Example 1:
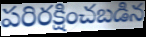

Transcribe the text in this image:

పరిరక్షించబడిన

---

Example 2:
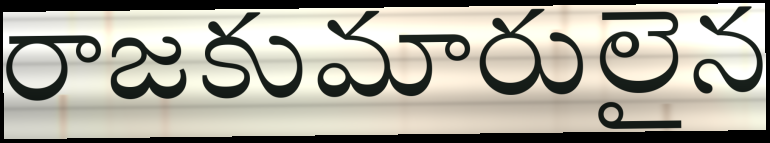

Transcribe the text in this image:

రాజకుమారులైన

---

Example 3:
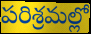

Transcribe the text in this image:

పరిశ్రమల్లో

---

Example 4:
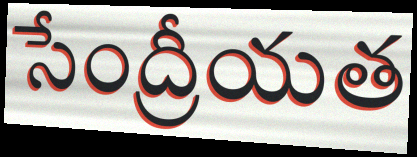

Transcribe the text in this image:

సేంద్రీయత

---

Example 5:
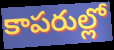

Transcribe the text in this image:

కాపరుల్లో